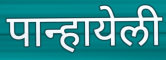
पान्हायेली